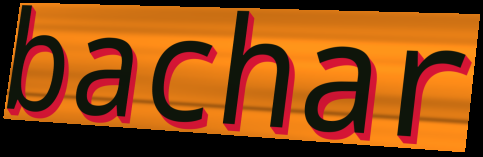
bachar